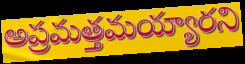
అప్రమత్తమయ్యారని